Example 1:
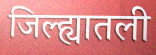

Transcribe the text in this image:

जिल्ह्यातली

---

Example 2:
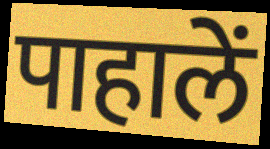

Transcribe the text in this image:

पाहालें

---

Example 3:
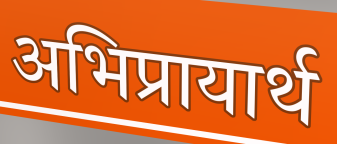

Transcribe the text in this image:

अभिप्रायार्थ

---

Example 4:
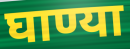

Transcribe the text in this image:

घाण्या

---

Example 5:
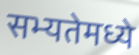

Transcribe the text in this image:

सभ्यतेमध्ये